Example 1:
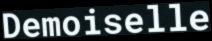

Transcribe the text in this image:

Demoiselle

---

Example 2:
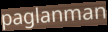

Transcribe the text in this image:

paglanman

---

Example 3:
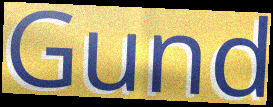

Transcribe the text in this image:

Gund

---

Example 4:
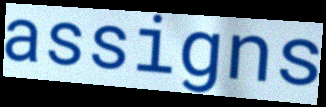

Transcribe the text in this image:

assigns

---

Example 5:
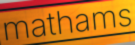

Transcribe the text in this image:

mathams